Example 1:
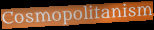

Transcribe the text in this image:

Cosmopolitanism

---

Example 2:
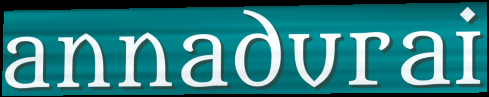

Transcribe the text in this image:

annadurai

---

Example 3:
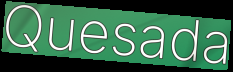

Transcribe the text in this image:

Quesada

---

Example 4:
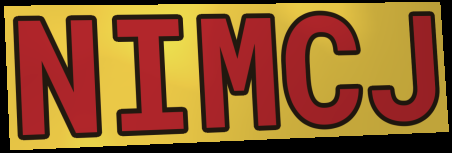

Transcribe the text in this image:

NIMCJ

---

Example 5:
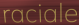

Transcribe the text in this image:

raciale